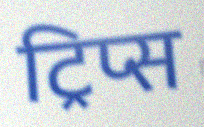
ट्रिप्स